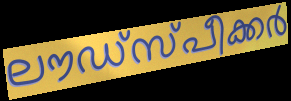
ലൗഡ്സ്പീക്കർ